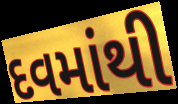
દવમાંથી